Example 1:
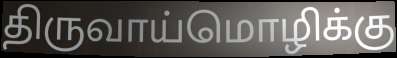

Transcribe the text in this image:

திருவாய்மொழிக்கு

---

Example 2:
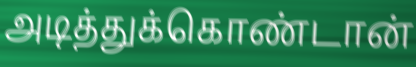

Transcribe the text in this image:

அடித்துக்கொண்டான்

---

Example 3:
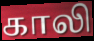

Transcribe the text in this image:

காலி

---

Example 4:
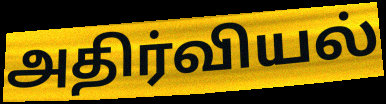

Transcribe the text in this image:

அதிர்வியல்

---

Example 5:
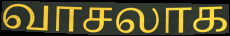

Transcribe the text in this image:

வாசலாக